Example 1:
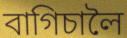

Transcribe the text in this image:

বাগিচালৈ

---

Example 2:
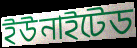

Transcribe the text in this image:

ইউনাইটেড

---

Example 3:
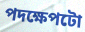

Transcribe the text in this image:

পদক্ষেপটো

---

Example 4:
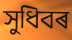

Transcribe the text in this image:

সুধিবৰ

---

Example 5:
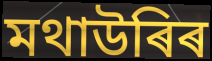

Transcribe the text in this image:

মথাউৰিৰ